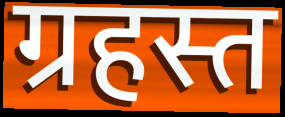
ग्रहस्त